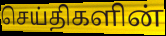
செய்திகளின்